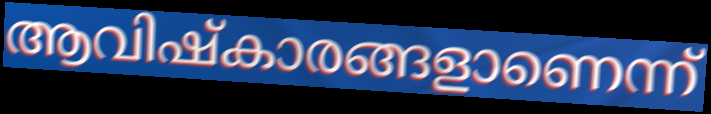
ആവിഷ്കാരങ്ങളാണെന്ന്